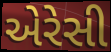
એરેસી